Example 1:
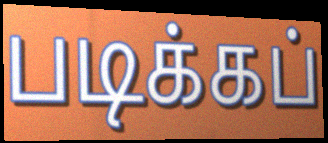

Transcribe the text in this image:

படிக்கப்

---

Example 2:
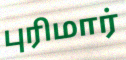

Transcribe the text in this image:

புரிமார்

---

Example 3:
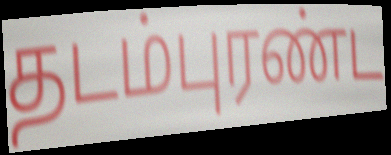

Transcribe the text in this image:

தடம்புரண்ட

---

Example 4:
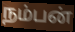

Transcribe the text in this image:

நம்பன்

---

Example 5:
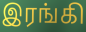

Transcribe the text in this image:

இரங்கி